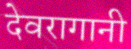
देवरागानी